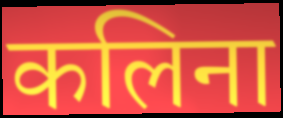
कलिना